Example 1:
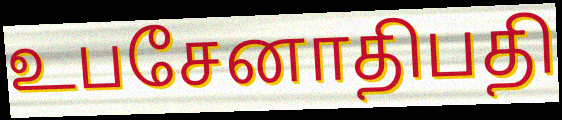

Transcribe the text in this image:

உபசேனாதிபதி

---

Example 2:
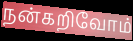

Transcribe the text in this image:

நன்கறிவோம்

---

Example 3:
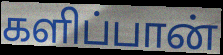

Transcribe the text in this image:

களிப்பான்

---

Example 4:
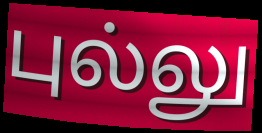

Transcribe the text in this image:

புல்லு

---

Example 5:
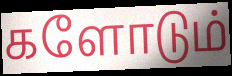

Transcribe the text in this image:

களோடும்